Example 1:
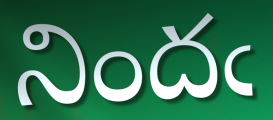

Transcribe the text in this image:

నిందఁ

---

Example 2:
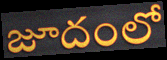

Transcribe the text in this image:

జూదంలో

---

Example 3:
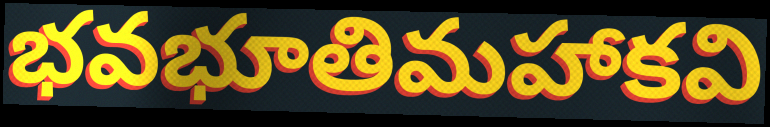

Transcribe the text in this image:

భవభూతిమహాకవి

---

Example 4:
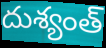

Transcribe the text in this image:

దుశ్యంత్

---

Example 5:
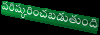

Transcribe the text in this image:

పరిష్కరించబడుతుంది